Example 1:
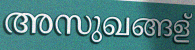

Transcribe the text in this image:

അസുഖങ്ങള്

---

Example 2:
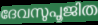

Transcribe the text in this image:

ദേവസുപൂജിത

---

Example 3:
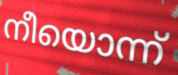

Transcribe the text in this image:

നീയൊന്ന്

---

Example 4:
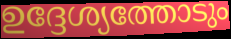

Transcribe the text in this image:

ഉദ്ദേശ്യത്തോടും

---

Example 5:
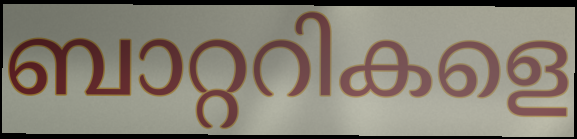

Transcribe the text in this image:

ബാറ്ററികളെ